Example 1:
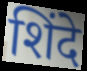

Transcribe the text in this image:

शिंदे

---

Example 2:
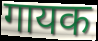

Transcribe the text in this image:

गायक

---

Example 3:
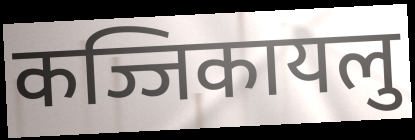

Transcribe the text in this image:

कज्जिकायलु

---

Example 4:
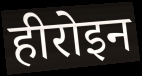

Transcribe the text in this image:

हीरोइन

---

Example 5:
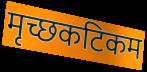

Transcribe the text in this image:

मृच्छकटिकम